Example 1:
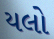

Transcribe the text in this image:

યલો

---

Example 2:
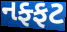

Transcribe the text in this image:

નફ્ફટ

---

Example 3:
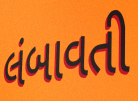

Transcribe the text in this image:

લંબાવતી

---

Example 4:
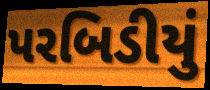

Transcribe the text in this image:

પરબિડીયું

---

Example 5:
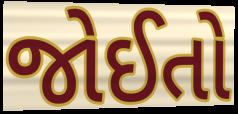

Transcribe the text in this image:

જોઈતો